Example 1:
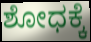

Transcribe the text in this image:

ಶೋಧಕ್ಕೆ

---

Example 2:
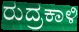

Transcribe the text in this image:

ರುದ್ರಕಾಳಿ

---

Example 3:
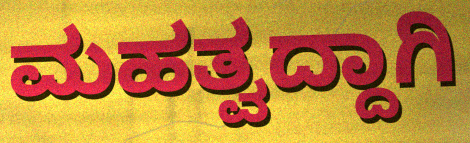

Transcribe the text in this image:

ಮಹತ್ವದ್ದಾಗಿ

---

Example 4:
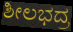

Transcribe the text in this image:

ಶೀಲಭದ್ರ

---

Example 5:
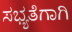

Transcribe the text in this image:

ಸಭ್ಯತೆಗಾಗಿ